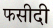
फसीदी